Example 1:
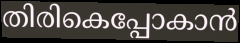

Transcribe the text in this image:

തിരികെപ്പോകാൻ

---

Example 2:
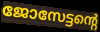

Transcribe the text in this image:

ജോസേട്ടന്റെ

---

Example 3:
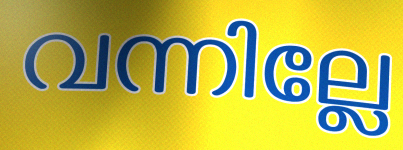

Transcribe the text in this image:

വന്നില്ലേ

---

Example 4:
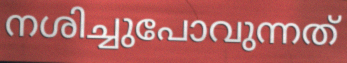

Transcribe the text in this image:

നശിച്ചുപോവുന്നത്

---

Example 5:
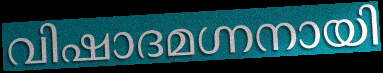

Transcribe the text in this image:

വിഷാദമഗ്നനായി